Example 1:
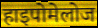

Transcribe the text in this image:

हाइपोमेलोज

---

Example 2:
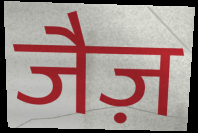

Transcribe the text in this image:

जैज़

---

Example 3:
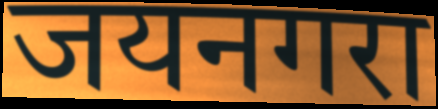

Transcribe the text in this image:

जयनगरा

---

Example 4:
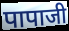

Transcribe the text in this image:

पापाजी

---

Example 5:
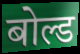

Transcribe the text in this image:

बोल्ड